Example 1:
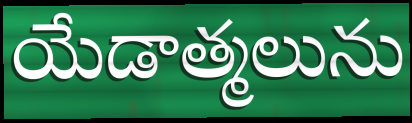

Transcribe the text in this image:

యేడాత్మలును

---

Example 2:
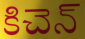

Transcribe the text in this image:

కిచెన్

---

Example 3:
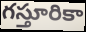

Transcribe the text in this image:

గస్తూరికా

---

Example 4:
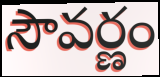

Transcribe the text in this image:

సౌవర్ణం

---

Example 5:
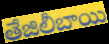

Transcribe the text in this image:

తేజిలీబాయి